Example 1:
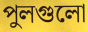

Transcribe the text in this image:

পুলগুলো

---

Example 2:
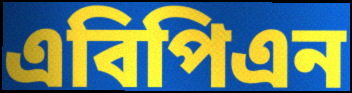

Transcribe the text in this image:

এবিপিএন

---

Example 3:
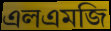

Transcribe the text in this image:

এলএমজি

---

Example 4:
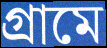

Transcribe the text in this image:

গ্রামে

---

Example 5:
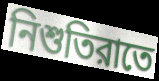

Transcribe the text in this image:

নিশুতিরাতে